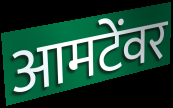
आमटेंवर